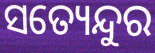
ସତ୍ୟେନ୍ଦୁର